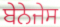
ਬੇਨੇਜੇਸ